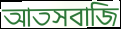
আতসবাজি